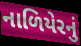
નાળિયેરનું